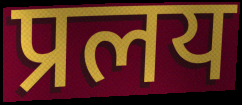
प्रलय